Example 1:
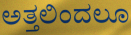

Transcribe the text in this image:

ಅತ್ತಲಿಂದಲೂ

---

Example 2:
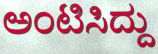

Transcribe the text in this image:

ಅಂಟಿಸಿದ್ದು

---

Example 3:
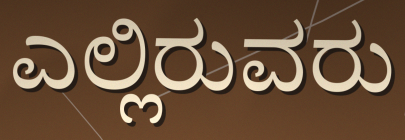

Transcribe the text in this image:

ಎಲ್ಲಿರುವರು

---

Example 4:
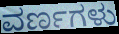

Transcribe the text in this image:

ವರ್ಣಗಳು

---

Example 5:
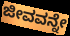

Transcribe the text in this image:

ಜೀವವನ್ನೇ